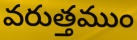
వరుత్తముం